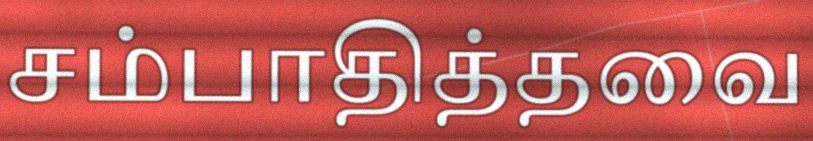
சம்பாதித்தவை